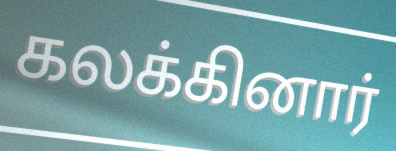
கலக்கினார்